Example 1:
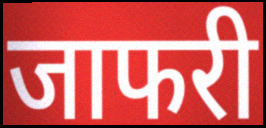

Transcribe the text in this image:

जाफरी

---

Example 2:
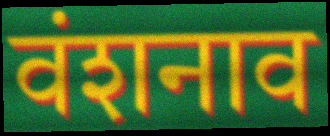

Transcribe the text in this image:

वंशनाव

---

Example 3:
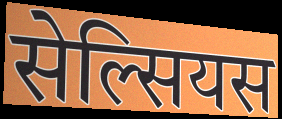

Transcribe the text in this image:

सेल्सियस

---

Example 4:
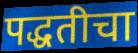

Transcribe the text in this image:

पद्धतीचा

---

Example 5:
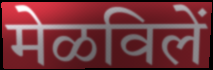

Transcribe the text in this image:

मेळविलें